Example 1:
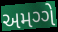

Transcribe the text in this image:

અમગ્ગે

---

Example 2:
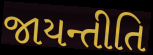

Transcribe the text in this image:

જાયન્તીતિ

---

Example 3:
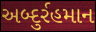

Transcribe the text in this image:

અબ્દુર્રહમાન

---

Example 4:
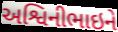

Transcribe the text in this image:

અશ્વિનીભાઇને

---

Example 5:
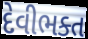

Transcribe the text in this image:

દેવીભક્ત